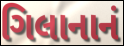
ગિલાનાનં